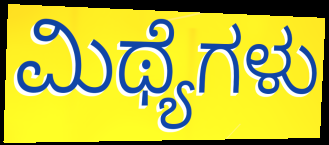
ಮಿಥ್ಯೆಗಳು